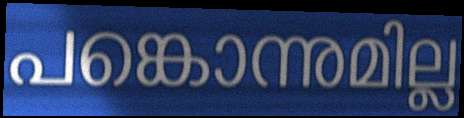
പങ്കൊന്നുമില്ല